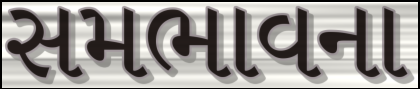
સમભાવના